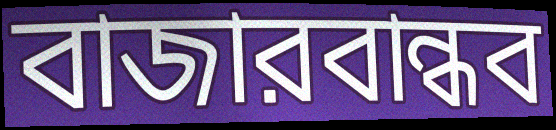
বাজারবান্ধব